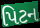
પિટન